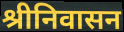
श्रीनिवासन